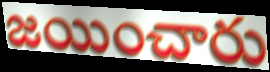
జయించారు